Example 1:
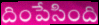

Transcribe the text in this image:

దింపేసింది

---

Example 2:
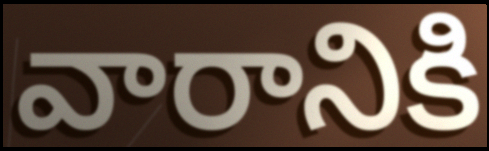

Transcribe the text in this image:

వారానికి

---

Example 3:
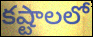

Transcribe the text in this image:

కష్టాలలో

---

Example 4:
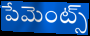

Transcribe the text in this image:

పేమెంట్స్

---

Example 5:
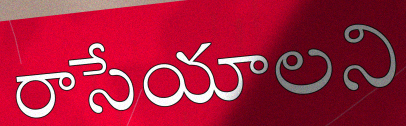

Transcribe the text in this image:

రాసేయాలని